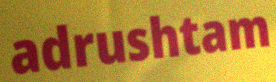
adrushtam